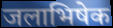
जलाभिषेक